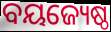
ବୟଜ୍ୟେଷ୍ଠ